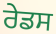
ਰੇਡਸ